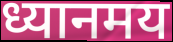
ध्यानमय